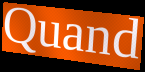
Quand